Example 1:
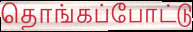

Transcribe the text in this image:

தொங்கப்போட்டு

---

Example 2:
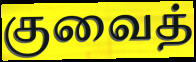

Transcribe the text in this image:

குவைத்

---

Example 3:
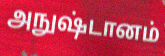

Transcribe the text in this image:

அநுஷ்டானம்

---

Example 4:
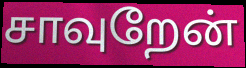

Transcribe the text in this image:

சாவுறேன்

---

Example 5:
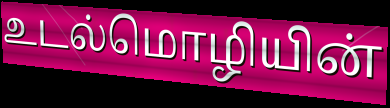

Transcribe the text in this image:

உடல்மொழியின்